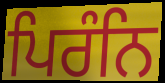
ਪਿਰੰਨਿ